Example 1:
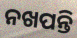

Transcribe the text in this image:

ନଖପନ୍ତି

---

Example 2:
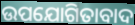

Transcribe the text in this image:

ଉପଯୋଗିତାବାଦ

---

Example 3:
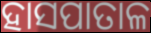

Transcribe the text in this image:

ହାସପାତାଳ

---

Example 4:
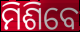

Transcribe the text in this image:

ମିଶିବେ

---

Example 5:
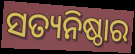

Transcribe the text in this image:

ସତ୍ୟନିଷ୍ଠାର